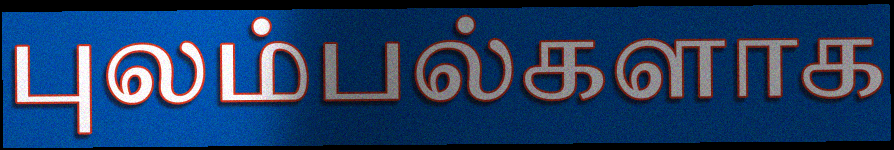
புலம்பல்களாக